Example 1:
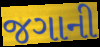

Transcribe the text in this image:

જગાની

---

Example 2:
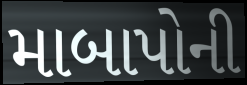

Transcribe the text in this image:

માબાપોની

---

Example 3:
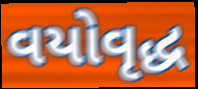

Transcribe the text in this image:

વયોવૃદ્ધ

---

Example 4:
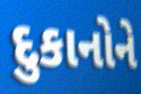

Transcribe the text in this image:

દુકાનોને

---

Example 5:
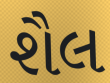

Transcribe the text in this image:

શૈલ